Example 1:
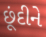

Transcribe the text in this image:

છૂંદીને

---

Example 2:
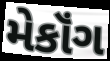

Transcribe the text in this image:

મેકૉંગ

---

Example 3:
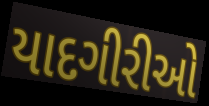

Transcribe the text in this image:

યાદગીરીઓ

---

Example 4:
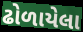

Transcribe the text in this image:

ઢોળાયેલા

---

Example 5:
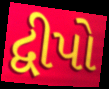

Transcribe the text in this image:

દ્વીપો